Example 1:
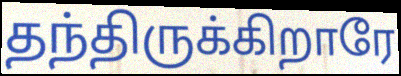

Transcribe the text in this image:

தந்திருக்கிறாரே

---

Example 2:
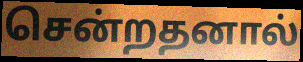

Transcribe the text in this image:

சென்றதனால்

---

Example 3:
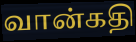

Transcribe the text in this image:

வான்கதி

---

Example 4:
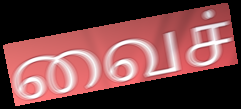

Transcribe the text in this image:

வைச்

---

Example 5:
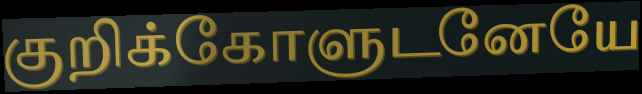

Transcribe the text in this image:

குறிக்கோளுடனேயே